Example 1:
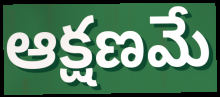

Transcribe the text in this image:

ఆక్షణమే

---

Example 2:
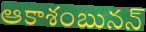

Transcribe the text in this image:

ఆకాశంబునన్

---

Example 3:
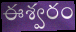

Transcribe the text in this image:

ఈశ్వరం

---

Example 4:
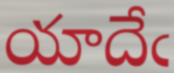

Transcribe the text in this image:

యాదేఁ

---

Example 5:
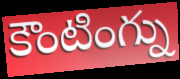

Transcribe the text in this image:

కౌంటింగ్ను